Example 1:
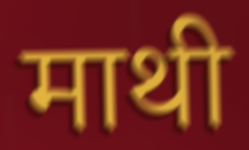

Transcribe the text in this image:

माथी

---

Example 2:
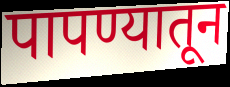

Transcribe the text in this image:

पापण्यातून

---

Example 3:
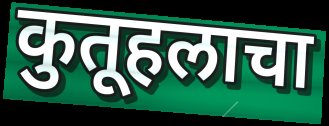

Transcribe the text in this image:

कुतूहलाचा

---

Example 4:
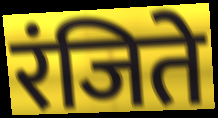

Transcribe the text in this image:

रंजिते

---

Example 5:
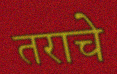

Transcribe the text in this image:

तराचे